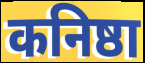
कनिष्ठा